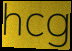
hcg